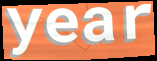
year